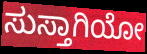
ಸುಸ್ತಾಗಿಯೋ